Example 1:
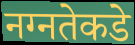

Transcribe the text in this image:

नग्नतेकडे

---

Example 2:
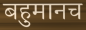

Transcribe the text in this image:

बहुमानच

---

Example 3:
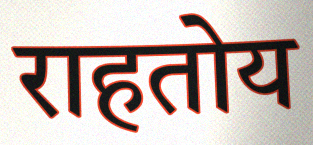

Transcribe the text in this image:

राहतोय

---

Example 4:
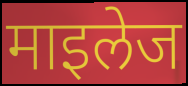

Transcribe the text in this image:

माइलेज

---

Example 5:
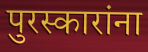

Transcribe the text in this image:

पुरस्कारांना